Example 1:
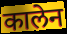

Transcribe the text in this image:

कालेन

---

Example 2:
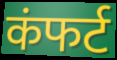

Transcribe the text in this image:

कंफर्ट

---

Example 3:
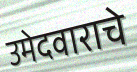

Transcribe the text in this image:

उमेदवाराचे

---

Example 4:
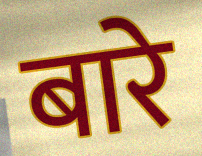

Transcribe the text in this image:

बारे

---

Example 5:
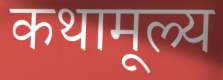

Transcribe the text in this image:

कथामूल्य